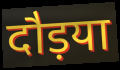
दौड़या